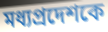
মধ্যপ্রদেশকে